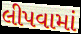
લીપવામાં